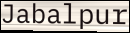
Jabalpur